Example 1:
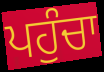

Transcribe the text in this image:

ਪਹੁੰਚਾ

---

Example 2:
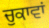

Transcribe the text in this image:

ਚੁਕਾਵਾਂ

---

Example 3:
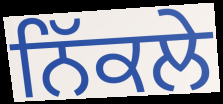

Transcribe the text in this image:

ਨਿੱਕਲੇ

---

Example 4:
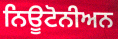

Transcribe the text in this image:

ਨਿਊਟੋਨੀਅਨ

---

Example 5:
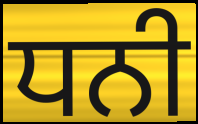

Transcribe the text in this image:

ਧਨੀ